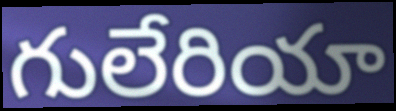
గులేరియా